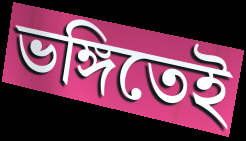
ভঙ্গিতেই